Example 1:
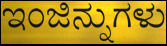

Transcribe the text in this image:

ಇಂಜಿನ್ನುಗಳು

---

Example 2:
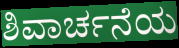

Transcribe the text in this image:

ಶಿವಾರ್ಚನೆಯ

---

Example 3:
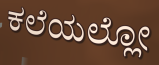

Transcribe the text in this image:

ಕಲೆಯಲ್ಲೋ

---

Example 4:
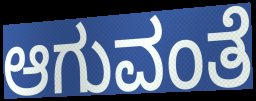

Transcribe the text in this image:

ಆಗುವಂತೆ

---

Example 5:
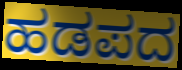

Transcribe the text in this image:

ಹಡಪದ